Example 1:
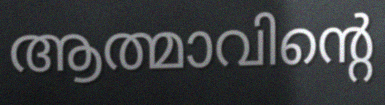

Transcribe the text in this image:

ആത്മാവിന്റെ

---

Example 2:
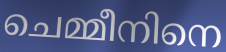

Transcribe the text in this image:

ചെമ്മീനിനെ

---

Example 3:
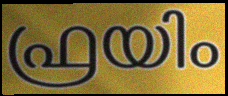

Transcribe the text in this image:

ഫ്രയിം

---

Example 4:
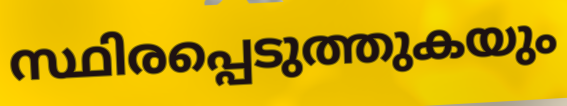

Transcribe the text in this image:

സ്ഥിരപ്പെടുത്തുകയും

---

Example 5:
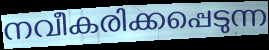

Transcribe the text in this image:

നവീകരിക്കപ്പെടുന്ന